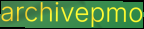
archivepmo